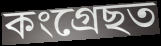
কংগ্ৰেছত